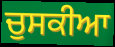
ਚੁਸਕੀਆ